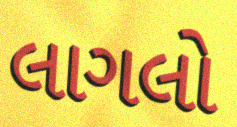
લાગલો